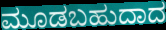
ಮೂಡಬಹುದಾದ